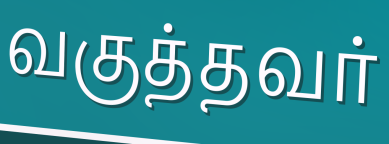
வகுத்தவர்